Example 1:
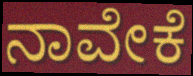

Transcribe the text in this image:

ನಾವೇಕೆ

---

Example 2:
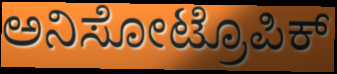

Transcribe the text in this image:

ಅನಿಸೋಟ್ರೊಪಿಕ್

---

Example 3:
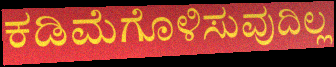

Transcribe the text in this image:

ಕಡಿಮೆಗೊಳಿಸುವುದಿಲ್ಲ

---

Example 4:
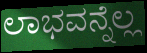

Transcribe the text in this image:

ಲಾಭವನ್ನೆಲ್ಲ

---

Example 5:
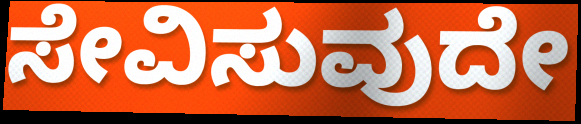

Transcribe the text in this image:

ಸೇವಿಸುವುದೇ